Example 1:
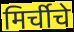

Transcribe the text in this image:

मिर्चीचे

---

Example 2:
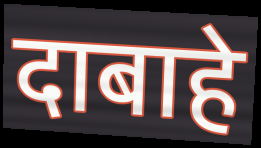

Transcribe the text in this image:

दाबाहे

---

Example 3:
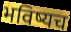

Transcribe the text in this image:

भविष्यच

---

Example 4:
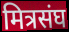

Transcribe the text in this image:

मित्रसंघ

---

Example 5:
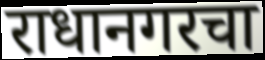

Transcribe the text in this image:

राधानगरचा